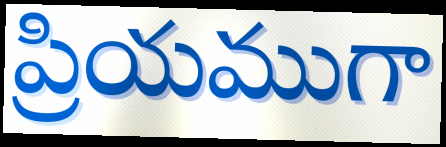
ప్రియముగా